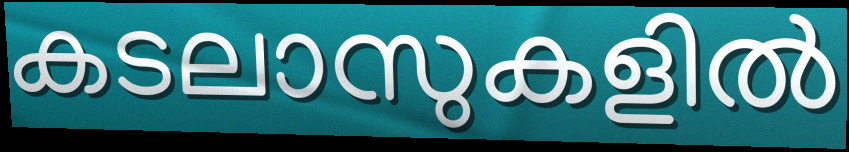
കടലാസുകളിൽ